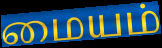
மையம்